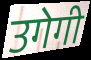
उगेगी